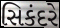
સિકંદરે